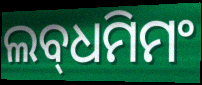
ଲବ୍‌ଧମିମଂ